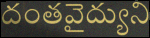
దంతవైద్యుని